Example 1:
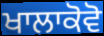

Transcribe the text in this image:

ਖਾਲਾਕੋਵੋ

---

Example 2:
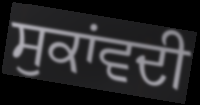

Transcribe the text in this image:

ਸੁਕਾਂਵਦੀ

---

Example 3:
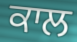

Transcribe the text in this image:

ਕਾਲ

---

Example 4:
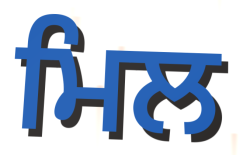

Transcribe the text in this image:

ਮਿਲ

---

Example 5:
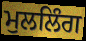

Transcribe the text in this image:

ਮੁਲਲਿੰਗ